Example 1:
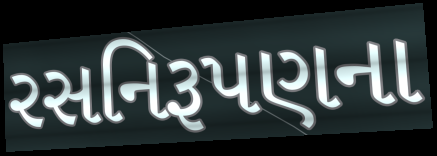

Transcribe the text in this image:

રસનિરૂપણના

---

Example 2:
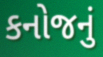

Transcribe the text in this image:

કનોજનું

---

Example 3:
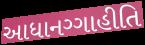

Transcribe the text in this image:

આધાનગ્ગાહીતિ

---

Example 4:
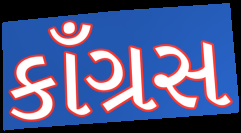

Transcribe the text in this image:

કાઁગ્રસ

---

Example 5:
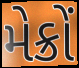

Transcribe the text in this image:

મેક્રોં